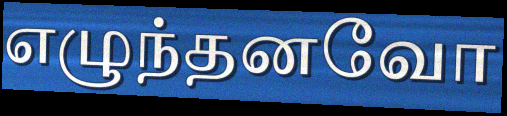
எழுந்தனவோ